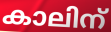
കാലിന്